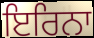
ਇਰਿਨਾ